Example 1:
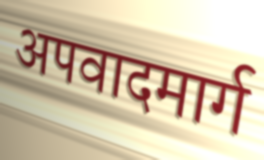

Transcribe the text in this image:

अपवादमार्ग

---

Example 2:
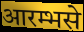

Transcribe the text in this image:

आरम्भसे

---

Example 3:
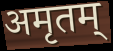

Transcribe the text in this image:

अमृतम्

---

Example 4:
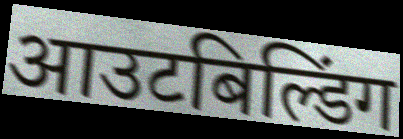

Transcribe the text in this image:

आउटबिल्डिंग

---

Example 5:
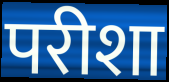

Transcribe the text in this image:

परीशा